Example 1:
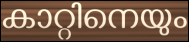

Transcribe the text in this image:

കാറ്റിനെയും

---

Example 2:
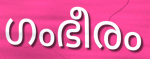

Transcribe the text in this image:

ഗംഭീരം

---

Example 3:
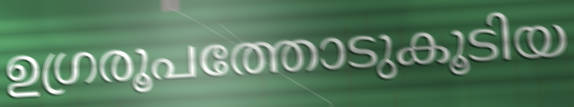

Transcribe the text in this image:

ഉഗ്രരൂപത്തോടുകൂടിയ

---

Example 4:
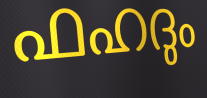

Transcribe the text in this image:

ഫഹദും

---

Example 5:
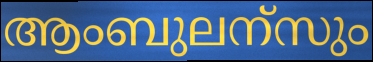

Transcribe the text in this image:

ആംബുലന്സും